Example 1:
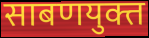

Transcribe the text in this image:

साबणयुक्त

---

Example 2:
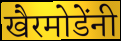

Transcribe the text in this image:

खैरमोडेंनी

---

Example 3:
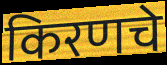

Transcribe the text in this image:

किरणचे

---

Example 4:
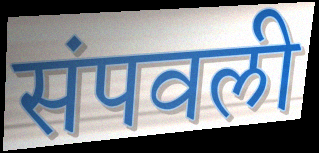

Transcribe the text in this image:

संपवली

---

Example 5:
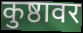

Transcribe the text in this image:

कुष्ठावर